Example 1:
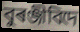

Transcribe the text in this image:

বুৰঞ্জীবিদে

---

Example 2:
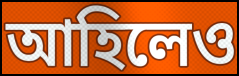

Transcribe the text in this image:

আহিলেও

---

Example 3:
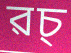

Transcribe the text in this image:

ৱচ্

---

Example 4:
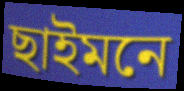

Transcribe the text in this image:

ছাইমনে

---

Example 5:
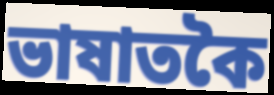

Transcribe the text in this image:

ভাষাতকৈ